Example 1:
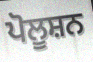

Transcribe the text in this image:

ਪੋਲੂਸ਼ਨ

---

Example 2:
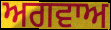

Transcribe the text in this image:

ਅਗਵਾਅ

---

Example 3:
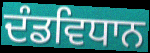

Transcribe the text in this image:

ਦੰਡਵਿਧਾਨ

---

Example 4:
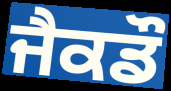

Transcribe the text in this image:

ਜੈਕਡੌ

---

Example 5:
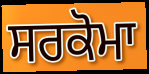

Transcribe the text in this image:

ਸਰਕੋਮਾ